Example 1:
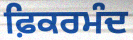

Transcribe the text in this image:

ਫ਼ਿਕਰਮੰਦ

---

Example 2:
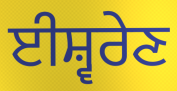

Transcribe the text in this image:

ਈਸ਼੍ਵਰੇਣ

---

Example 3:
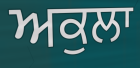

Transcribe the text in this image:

ਅਕੁਲਾ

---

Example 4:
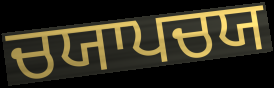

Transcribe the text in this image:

ਚਯਾਪਚਯ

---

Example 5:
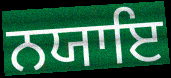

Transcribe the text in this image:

ਨਯਾਇ